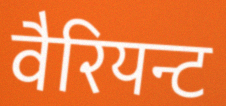
वैरियन्ट